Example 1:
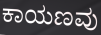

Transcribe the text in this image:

ಕಾಯಣವು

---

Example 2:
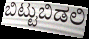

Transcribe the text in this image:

ಬಿಟ್ಟುಬಿಡಲಿ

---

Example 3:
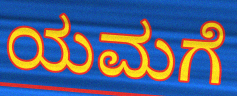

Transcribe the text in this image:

ಯಮಗೆ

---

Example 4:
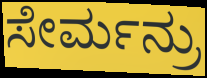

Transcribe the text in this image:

ಸೇರ್ಮನ್ರು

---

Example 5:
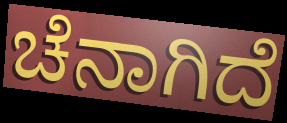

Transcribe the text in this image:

ಚೆನಾಗಿದೆ